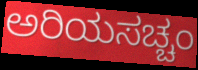
ಅರಿಯಸಚ್ಚಂ